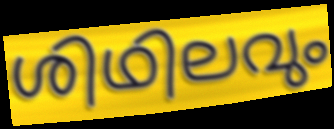
ശിഥിലവും